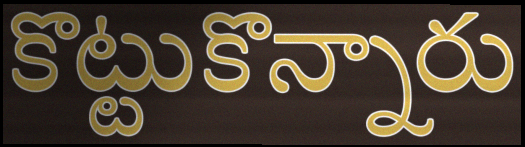
కొట్టుకొన్నారు